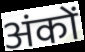
अंकों